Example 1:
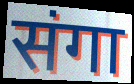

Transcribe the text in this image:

संगा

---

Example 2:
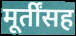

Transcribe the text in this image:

मूर्तींसह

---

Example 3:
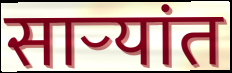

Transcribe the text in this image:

साऱ्यांत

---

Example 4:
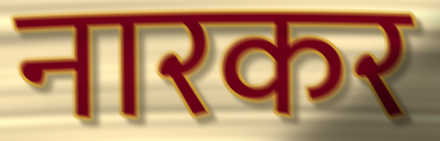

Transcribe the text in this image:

नारकर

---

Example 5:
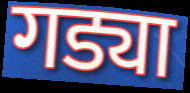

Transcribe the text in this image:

गड्या